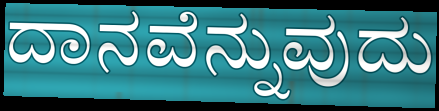
ದಾನವೆನ್ನುವುದು